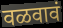
वळवावं